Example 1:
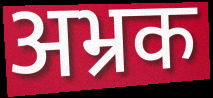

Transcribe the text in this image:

अभ्रक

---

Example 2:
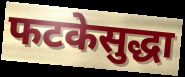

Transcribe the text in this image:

फटकेसुद्धा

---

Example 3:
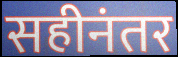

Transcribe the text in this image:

सहीनंतर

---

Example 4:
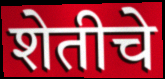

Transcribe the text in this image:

शेतीचे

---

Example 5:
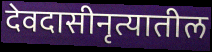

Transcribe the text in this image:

देवदासीनृत्यातील